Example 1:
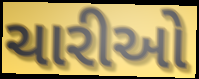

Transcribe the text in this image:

ચારીઓ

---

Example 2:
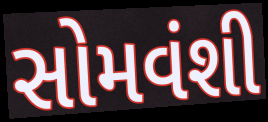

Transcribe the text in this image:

સોમવંશી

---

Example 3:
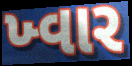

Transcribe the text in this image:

ખ્વાર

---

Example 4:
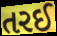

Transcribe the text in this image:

તરઈ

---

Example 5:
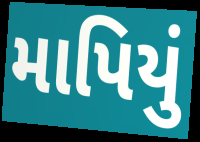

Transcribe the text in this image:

માપિયું